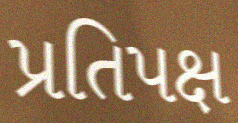
પ્રતિપક્ષ